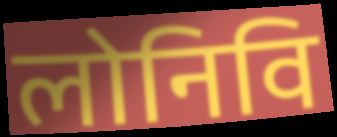
लोनिवि